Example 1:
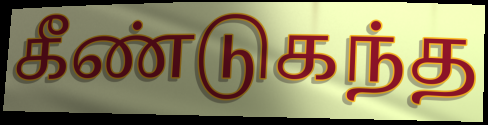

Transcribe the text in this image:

கீண்டுகந்த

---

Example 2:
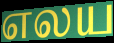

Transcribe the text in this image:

எலய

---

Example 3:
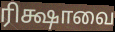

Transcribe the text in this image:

ரிக்ஷாவை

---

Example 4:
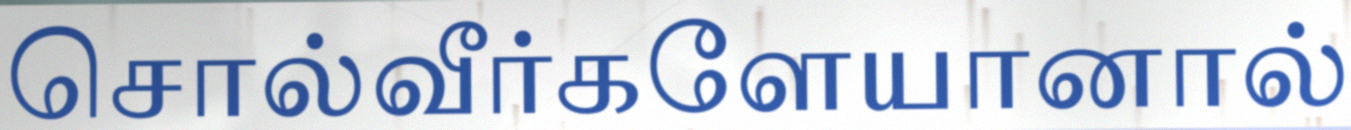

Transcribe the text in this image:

சொல்வீர்களேயானால்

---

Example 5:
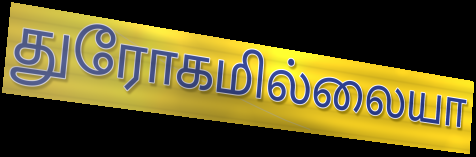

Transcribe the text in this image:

துரோகமில்லையா